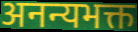
अनन्यभक्त